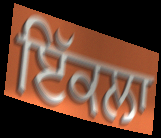
ਇੱਕਲਾ